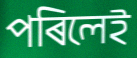
পৰিলেই